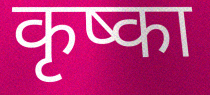
कृष्का